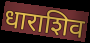
धाराशिव